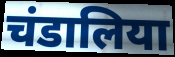
चंडालिया